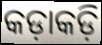
କଡ଼ାକଡ଼ି